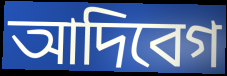
আদিবেগ